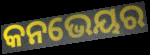
କନଭେୟର